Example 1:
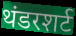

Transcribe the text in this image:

थंडरशर्ट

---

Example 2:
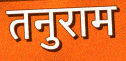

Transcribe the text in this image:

तनुराम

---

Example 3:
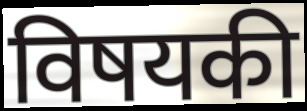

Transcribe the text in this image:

विषयकी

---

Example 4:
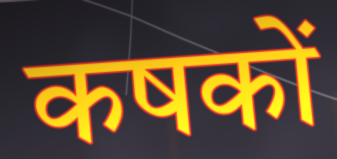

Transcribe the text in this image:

कषकों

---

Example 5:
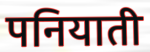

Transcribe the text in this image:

पनियाती